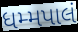
ધમ્મપાલં